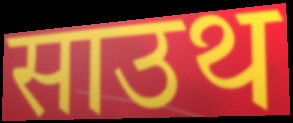
साउथ